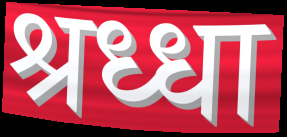
श्रध्धा